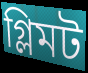
গ্লিমট